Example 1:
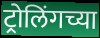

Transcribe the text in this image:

ट्रोलिंगच्या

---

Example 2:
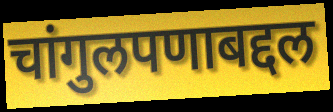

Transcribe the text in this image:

चांगुलपणाबद्दल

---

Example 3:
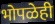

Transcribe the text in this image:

भोपळेही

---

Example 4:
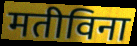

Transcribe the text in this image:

मतीविना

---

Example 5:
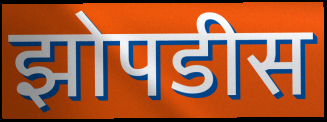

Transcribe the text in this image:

झोपडीस